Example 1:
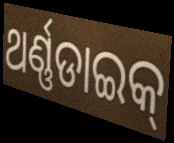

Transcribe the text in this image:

ଥର୍ଣ୍ଣଡାଇକ୍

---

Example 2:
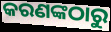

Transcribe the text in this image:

କରଣଙ୍କଠାରୁ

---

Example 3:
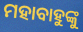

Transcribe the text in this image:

ମହାବାହୁଙ୍କୁ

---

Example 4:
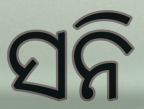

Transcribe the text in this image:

ସନି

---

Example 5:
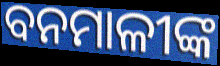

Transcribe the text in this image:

ବନମାଳୀଙ୍କ